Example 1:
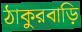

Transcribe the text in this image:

ঠাকুরবাড়ি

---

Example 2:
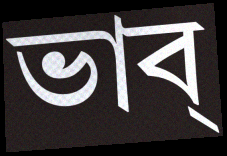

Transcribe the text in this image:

ভাব্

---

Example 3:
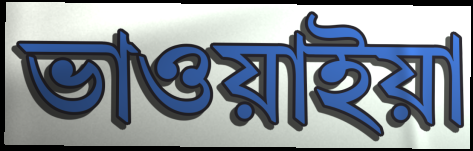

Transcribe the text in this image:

ভাওয়াইয়া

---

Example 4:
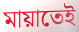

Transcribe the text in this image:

মায়াতেই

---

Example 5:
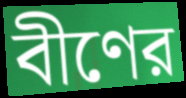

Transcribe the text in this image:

বীণের